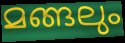
മങ്ങലും